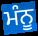
ਮੰਨੂ